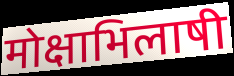
मोक्षाभिलाषी